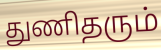
துணிதரும்